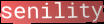
senility